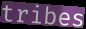
tribes